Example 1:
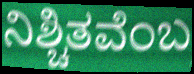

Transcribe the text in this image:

ನಿಶ್ಚಿತವೆಂಬ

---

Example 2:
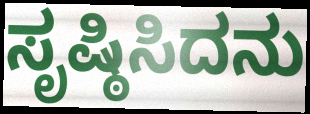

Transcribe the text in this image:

ಸೃಷ್ಠಿಸಿದನು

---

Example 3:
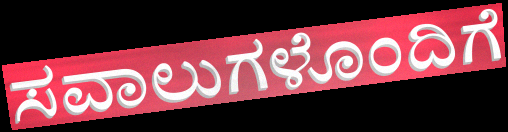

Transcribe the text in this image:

ಸವಾಲುಗಳೊಂದಿಗೆ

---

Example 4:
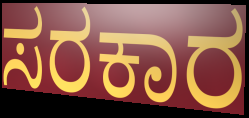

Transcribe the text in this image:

ಸರಕಾರ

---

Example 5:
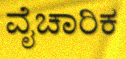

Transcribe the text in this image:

ವೈಚಾರಿಕ